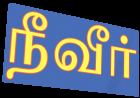
நீவீர்